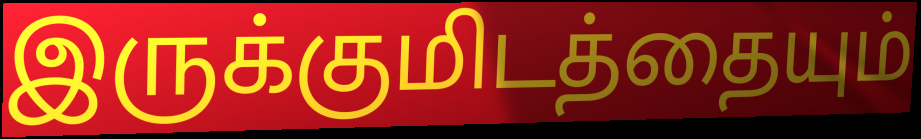
இருக்குமிடத்தையும்